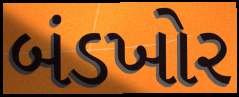
બંડખોર